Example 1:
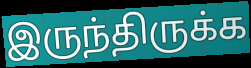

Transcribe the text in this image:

இருந்திருக்க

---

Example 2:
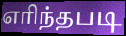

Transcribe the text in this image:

எரிந்தபடி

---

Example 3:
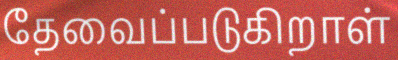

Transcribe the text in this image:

தேவைப்படுகிறாள்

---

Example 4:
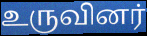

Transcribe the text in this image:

உருவினர்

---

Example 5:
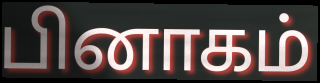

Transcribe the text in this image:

பினாகம்